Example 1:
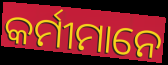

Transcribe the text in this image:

କର୍ମୀମାନେ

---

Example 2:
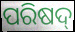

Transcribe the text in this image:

ପରିଷଦ୍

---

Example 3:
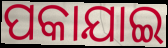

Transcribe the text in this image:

ପକାଯାଇ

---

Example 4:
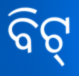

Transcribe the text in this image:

ବିଟ୍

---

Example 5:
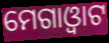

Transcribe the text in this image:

ମେଗାଓ୍ଵାଟ